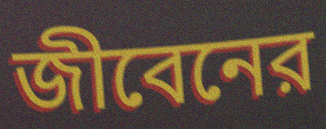
জীবেনের